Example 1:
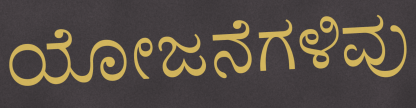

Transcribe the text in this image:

ಯೋಜನೆಗಳಿವು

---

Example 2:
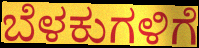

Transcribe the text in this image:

ಬೆಳಕುಗಳಿಗೆ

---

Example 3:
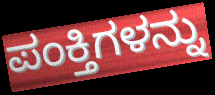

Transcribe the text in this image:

ಪಂಕ್ತಿಗಳನ್ನು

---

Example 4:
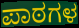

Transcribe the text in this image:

ಪಾಠಗಳ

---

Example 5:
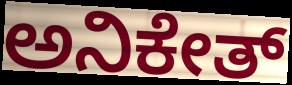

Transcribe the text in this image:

ಅನಿಕೇತ್